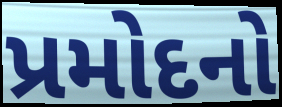
પ્રમોદનો